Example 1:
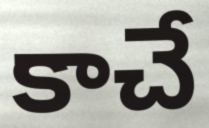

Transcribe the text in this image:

కాచే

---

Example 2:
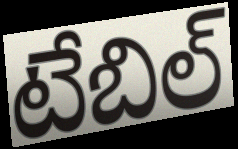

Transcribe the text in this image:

టేబిల్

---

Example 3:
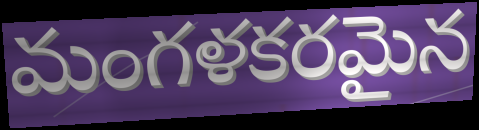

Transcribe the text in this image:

మంగళకరమైన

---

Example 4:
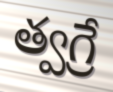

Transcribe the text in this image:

త్వగ్రే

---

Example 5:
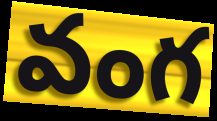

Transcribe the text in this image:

వంగ